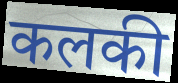
कलकी